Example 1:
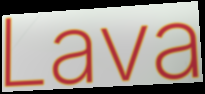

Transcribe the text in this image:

Lava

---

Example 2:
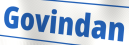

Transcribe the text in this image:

Govindan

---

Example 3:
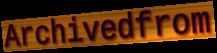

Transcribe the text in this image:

Archivedfrom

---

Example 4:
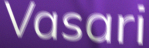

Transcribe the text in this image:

Vasari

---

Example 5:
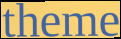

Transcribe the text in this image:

theme